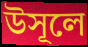
উসূলে